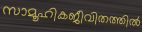
സാമൂഹികജീവിതത്തിൽ